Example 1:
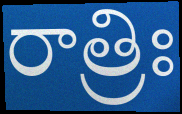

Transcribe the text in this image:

రాత్రిః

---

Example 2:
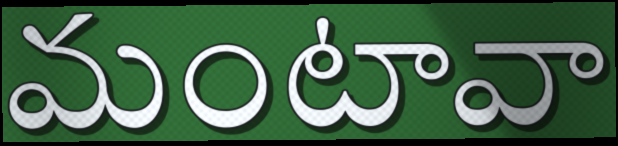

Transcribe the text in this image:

మంటావా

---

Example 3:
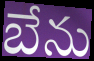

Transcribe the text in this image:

బేను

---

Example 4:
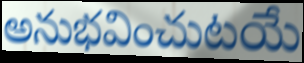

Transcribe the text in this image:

అనుభవించుటయే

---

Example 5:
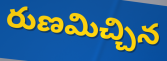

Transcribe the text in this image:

రుణమిచ్చిన